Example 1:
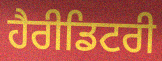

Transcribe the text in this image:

ਹੈਰੀਡਿਟਰੀ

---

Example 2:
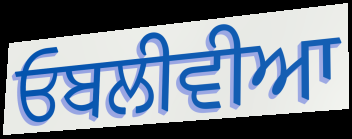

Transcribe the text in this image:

ਓਬਲੀਵੀਆ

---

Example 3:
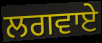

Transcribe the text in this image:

ਲਗਵਾਏ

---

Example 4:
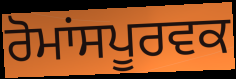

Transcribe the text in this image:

ਰੋਮਾਂਸਪੂਰਵਕ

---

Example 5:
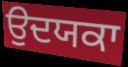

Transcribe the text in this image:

ਉਦਯਕਾ